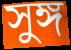
সুঙ্গ